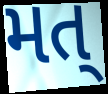
મત્